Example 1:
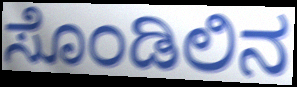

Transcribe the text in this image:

ಸೊಂಡಿಲಿನ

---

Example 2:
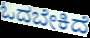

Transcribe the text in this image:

ಓದಬೇಕಿದೆ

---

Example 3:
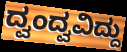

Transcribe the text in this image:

ದ್ವಂದ್ವವಿದ್ದು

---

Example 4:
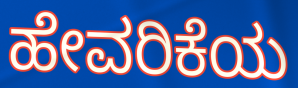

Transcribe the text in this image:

ಹೇವರಿಕೆಯ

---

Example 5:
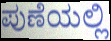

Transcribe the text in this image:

ಪುಣೆಯಲ್ಲಿ